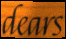
dears